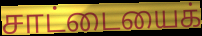
சாட்டையைக்